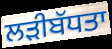
ਲੜੀਬੱਧਤਾ